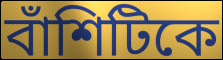
বাঁশিটিকে